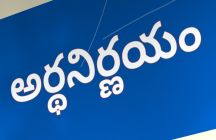
అర్థనిర్ణయం